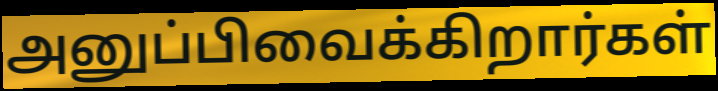
அனுப்பிவைக்கிறார்கள்